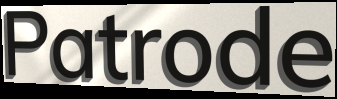
Patrode